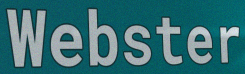
Webster